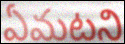
ఏమటని